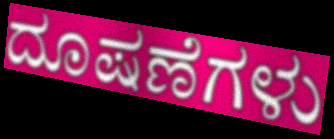
ದೂಷಣೆಗಳು